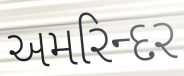
અમરિન્દર